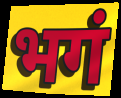
भगं